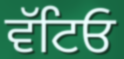
ਵੱਟਿਓ